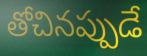
తోచినప్పుడే